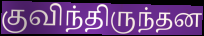
குவிந்திருந்தன